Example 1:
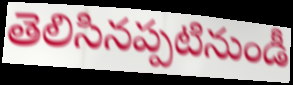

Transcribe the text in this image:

తెలిసినప్పటినుండీ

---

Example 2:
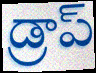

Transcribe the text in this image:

డ్రాప్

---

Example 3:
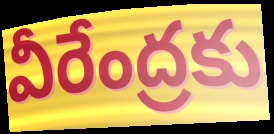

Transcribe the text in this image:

వీరేంద్రకు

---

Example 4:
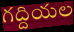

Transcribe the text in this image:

గద్దియల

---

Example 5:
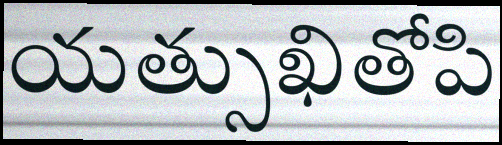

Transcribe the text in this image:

యత్సుఖితోపి